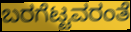
ಬರಗೆಟ್ಟವರಂತೆ